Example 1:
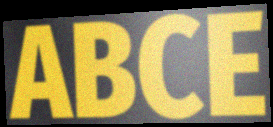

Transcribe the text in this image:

ABCE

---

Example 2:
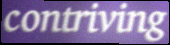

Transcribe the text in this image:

contriving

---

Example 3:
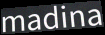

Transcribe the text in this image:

madina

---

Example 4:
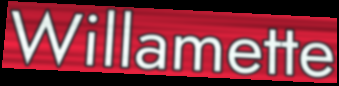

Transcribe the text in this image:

Willamette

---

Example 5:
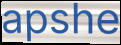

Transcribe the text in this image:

apshe